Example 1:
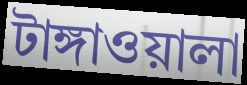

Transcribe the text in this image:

টাঙ্গাওয়ালা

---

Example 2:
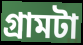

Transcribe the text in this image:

গ্রামটা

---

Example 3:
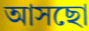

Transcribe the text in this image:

আসছো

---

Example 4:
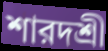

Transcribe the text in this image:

শারদশ্রী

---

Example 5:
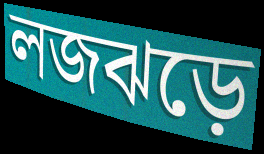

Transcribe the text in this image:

লজঝড়ে